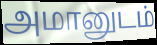
அமானுடம்